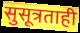
सुसूत्रताही